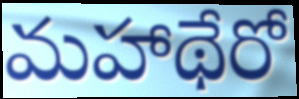
మహాథేరో